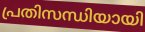
പ്രതിസന്ധിയായി